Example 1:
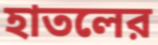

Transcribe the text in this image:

হাতলের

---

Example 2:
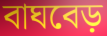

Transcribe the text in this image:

বাঘবেড়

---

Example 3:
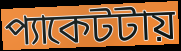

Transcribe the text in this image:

প্যাকেটটায়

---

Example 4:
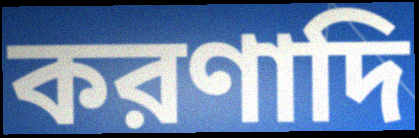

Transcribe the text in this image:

করণাদি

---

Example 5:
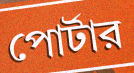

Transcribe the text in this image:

পোর্টার